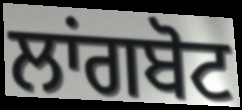
ਲਾਂਗਬੋਟ